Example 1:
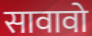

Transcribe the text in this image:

सावावो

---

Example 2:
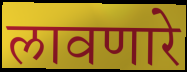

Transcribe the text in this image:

लावणारे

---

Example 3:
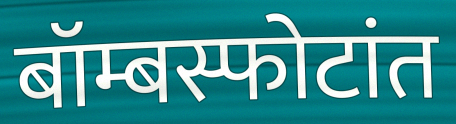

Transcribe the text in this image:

बॉम्बस्फोटांत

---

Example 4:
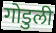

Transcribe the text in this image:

गोडुली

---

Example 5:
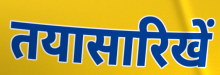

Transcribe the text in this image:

तयासारिखें